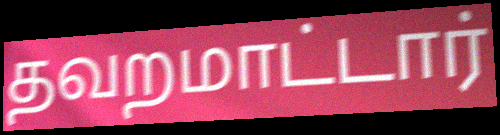
தவறமாட்டார்